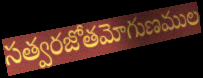
సత్వరజోతమోగుణముల